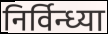
निर्विन्ध्या